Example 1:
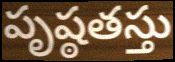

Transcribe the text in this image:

పృష్ఠతస్తు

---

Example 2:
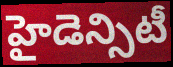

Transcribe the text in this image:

హైడెన్సిటీ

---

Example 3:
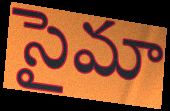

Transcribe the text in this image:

సైమా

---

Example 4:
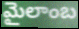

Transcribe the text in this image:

మైలాంబ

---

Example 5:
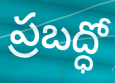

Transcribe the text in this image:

ప్రబద్ధో